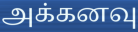
அக்கனவு